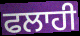
ਫਲਾਹੀ